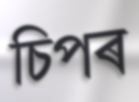
চিপৰ